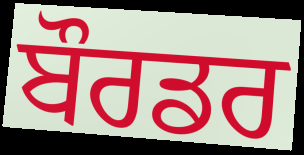
ਬੌਰਡਰ